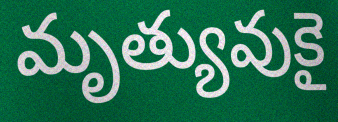
మృత్యువుకై